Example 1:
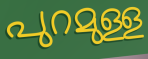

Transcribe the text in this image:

പുറമുള്ള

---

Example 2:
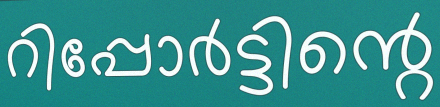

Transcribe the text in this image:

റിപ്പോർട്ടിന്റെ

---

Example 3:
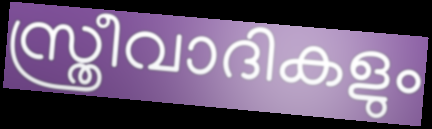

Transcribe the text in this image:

സ്ത്രീവാദികളും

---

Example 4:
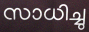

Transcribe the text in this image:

സാധിച്ചു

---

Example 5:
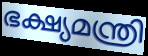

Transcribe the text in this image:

ഭക്ഷ്യമന്ത്രി